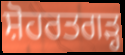
ਸ਼ੋਹਰਤਗੜ੍ਹ